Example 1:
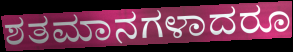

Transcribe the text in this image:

ಶತಮಾನಗಳಾದರೂ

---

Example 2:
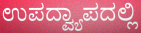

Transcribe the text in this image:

ಉಪದ್ವ್ಯಾಪದಲ್ಲಿ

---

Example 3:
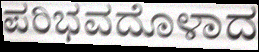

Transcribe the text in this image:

ಪರಿಭವದೊಳಾದ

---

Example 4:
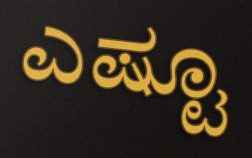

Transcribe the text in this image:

ಎಷ್ಟೂ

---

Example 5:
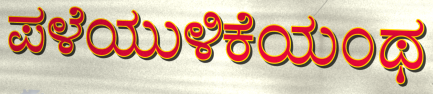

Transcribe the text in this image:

ಪಳೆಯುಳಿಕೆಯಂಥ